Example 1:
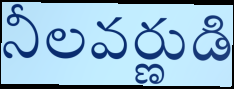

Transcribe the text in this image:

నీలవర్ణుడి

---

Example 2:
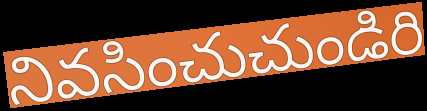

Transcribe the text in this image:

నివసించుచుండిరి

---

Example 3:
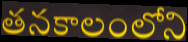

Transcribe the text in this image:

తనకాలంలోని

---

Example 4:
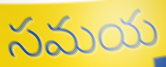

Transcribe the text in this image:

సమయ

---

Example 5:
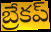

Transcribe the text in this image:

బ్రేకప్